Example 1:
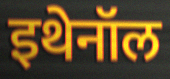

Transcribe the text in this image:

इथेनॉल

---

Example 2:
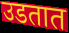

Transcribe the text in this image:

उडतात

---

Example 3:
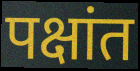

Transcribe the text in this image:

पक्षांत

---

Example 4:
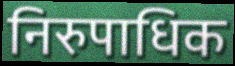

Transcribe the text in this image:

निरुपाधिक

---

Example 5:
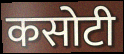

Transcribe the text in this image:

कसोटी